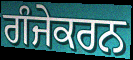
ਗੰਜੇਕਰਨ